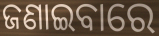
ଜଣାଇବାରେ